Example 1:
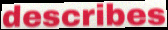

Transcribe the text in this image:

describes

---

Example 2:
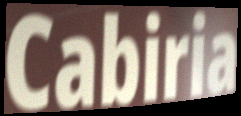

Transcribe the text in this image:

Cabiria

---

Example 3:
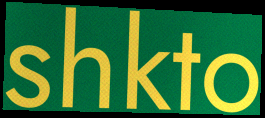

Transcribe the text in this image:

shkto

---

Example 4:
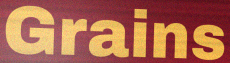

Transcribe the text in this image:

Grains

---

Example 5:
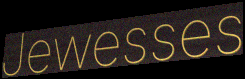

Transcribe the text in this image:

Jewesses